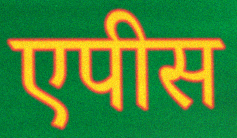
एपीस